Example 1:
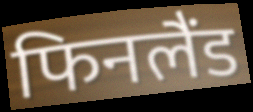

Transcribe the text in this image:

फिनलैंड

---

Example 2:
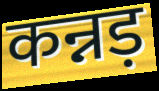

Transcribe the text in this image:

कन्नड़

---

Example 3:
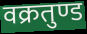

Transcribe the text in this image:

वक्रतुण्ड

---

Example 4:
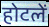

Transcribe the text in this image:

होटलें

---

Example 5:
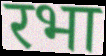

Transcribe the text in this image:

रभा